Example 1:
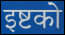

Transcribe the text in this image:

इष्टको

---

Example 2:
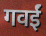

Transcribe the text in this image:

गवईं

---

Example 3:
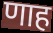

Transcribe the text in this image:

णाह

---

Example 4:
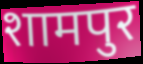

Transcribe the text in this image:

शामपुर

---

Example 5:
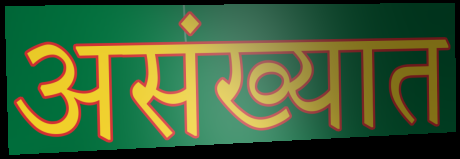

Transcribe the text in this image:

असंख्यात